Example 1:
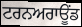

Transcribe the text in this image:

ਟਰਨਅਰਾਊਂਡ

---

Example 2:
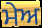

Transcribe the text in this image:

ਮੇਅ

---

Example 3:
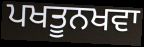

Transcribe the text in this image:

ਪਖਤੂਨਖਵਾ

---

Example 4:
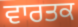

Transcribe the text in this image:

ਵਾਰਤਕ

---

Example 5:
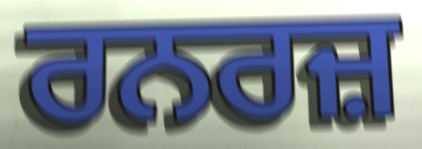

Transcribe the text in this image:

ਰਨਰਜ਼